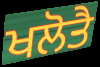
ਖਲੋਤੈ